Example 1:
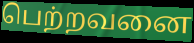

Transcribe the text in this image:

பெற்றவனை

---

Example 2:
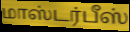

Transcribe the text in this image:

மாஸ்டர்பீஸ்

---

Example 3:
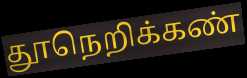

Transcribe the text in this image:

தூநெறிக்கண்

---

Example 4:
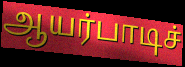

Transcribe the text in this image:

ஆயர்பாடிச்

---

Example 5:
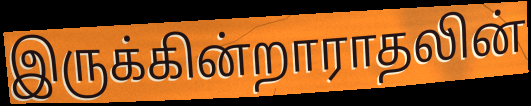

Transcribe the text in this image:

இருக்கின்றாராதலின்